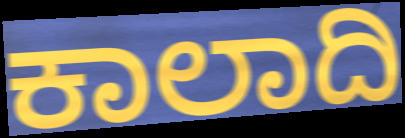
ಕಾಲಾದಿ